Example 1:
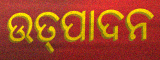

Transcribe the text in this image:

ଉତ୍‌ପାଦନ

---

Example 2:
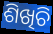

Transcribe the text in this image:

ଶିଖିଚି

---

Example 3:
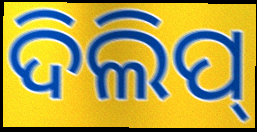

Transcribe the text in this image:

ଦିଲିପ୍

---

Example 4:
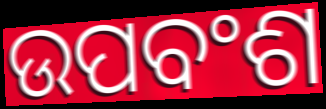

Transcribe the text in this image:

ଉପବଂଶ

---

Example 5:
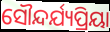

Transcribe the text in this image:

ସୌନ୍ଦର୍ଯ୍ୟପ୍ରିୟା